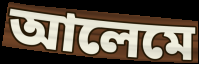
আলেমে